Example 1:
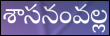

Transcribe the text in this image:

శాసనంవల్ల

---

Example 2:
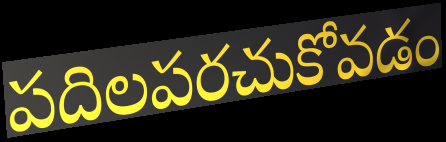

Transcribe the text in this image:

పదిలపరచుకోవడం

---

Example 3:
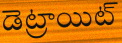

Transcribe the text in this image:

డెట్రాయిట్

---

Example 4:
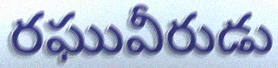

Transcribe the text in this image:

రఘువీరుడు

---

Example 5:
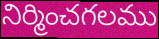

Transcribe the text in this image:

నిర్మించగలము